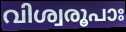
വിശ്വരൂപാഃ